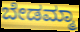
ಬೇಡಮ್ಮಾ